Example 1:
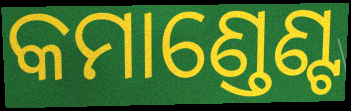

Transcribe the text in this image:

କମାଣ୍ଡେଣ୍ଟ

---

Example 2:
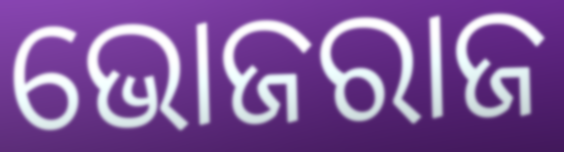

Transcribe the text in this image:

ଭୋଜରାଜ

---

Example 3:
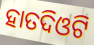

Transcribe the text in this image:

ହାତଦିଓଟି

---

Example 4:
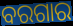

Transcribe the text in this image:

ବରଗାର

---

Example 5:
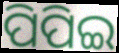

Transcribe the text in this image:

ପିପିଇ